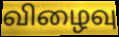
விழைவு